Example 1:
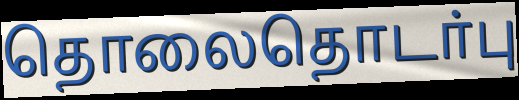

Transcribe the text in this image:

தொலைதொடர்பு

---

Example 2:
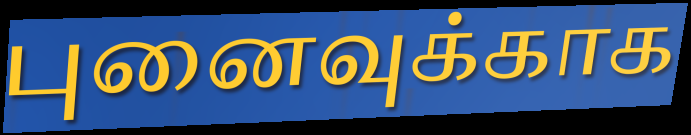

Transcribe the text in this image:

புனைவுக்காக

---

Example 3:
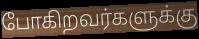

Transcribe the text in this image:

போகிறவர்களுக்கு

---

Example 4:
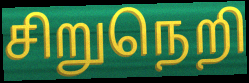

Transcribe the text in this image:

சிறுநெறி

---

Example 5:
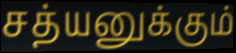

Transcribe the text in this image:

சத்யனுக்கும்